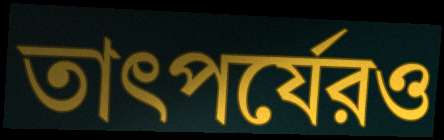
তাৎপর্যেরও